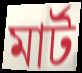
মার্ট